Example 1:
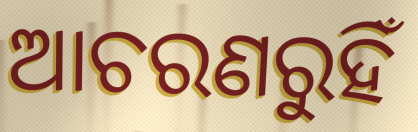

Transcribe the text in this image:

ଆଚରଣରୁହିଁ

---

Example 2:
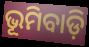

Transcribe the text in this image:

ଭୂମିବାଡ଼ି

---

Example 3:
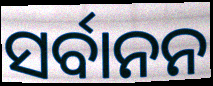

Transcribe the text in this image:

ସର୍ବାନନ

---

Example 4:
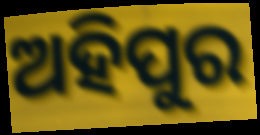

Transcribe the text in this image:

ଅହିପୁର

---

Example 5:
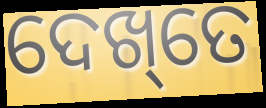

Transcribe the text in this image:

ଦେଖ୍‌ତେ